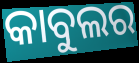
କାବୁଲର